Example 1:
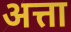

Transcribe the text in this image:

अत्ता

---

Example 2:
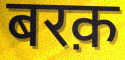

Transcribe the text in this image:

बरक़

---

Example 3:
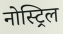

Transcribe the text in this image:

नोस्ट्रिल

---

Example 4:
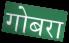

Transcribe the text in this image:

गोबरा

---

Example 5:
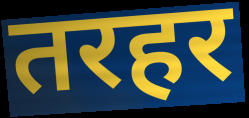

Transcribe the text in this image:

तरहर